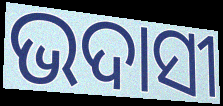
ଭଦାସୀ